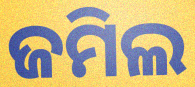
ଜମିଲ